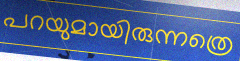
പറയുമായിരുന്നത്രെ